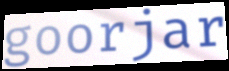
goorjar